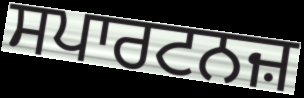
ਸਪਾਰਟਨਜ਼